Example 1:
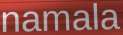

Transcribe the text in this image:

namala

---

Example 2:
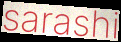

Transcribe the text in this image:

sarashi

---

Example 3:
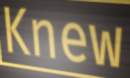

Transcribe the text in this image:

Knew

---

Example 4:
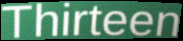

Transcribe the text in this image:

Thirteen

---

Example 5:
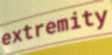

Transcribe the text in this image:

extremity